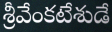
శ్రీవేంకటేశుడే